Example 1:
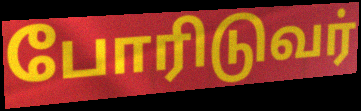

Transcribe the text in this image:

போரிடுவர்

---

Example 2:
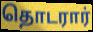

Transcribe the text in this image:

தொடரார்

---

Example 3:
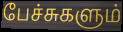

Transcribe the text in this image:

பேச்சுகளும்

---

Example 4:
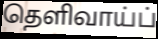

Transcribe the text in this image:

தெளிவாய்ப்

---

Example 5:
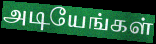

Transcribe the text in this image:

அடியேங்கள்